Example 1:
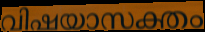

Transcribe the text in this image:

വിഷയാസക്തം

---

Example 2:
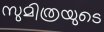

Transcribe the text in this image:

സുമിത്രയുടെ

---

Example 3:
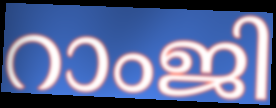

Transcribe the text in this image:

റാംജി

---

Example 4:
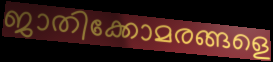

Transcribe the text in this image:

ജാതിക്കോമരങ്ങളെ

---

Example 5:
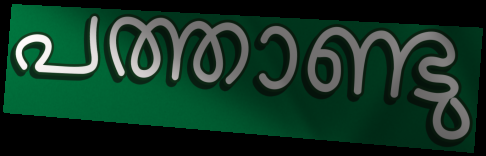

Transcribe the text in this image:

പത്താണ്ടു